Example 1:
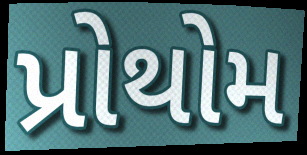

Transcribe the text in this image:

પ્રોથોમ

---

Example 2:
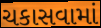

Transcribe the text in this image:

ચકાસવામાં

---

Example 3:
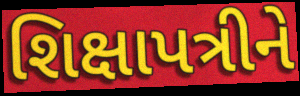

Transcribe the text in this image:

શિક્ષાપત્રીને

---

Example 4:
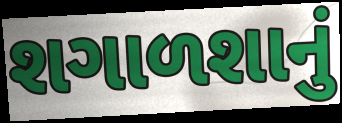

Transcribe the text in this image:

શગાળશાનું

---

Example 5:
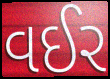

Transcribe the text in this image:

વઈર